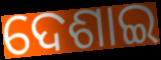
ଦେଶାଇ